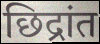
छिद्रांत